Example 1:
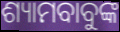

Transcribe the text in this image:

ଶ୍ୟାମବାବୁଙ୍କ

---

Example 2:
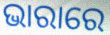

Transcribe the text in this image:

ଭାରାରେ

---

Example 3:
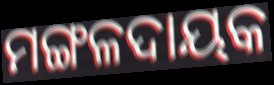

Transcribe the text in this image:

ମଙ୍ଗଳଦାୟକ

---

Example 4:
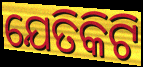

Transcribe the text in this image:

ଯେତିକିଟି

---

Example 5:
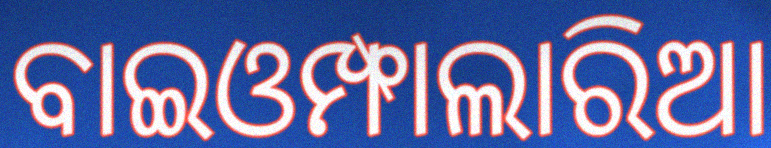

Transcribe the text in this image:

ବାଇଓମ୍ଫାଲାରିଆ